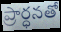
ప్రార్ధనతో